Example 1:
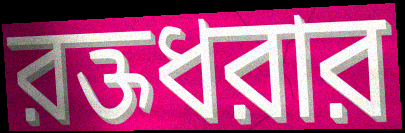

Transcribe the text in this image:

রক্তধরার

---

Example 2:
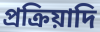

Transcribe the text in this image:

প্রক্রিয়াদি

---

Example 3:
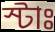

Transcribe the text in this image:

স্টাঃ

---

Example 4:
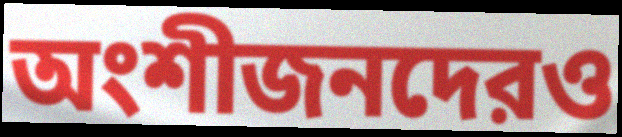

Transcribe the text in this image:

অংশীজনদেরও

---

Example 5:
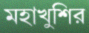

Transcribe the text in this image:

মহাখুশির